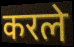
करले